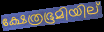
ക്ഷേത്രഭൂമിയില്